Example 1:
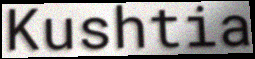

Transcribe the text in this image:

Kushtia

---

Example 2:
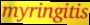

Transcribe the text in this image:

myringitis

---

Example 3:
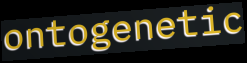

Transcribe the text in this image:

ontogenetic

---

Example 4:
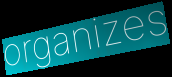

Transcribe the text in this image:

organizes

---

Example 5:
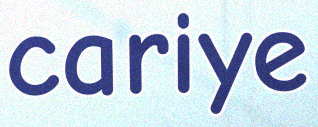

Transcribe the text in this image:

cariye